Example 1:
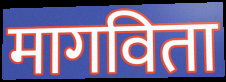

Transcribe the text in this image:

मागविता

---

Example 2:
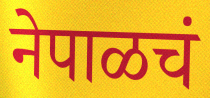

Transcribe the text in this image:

नेपाळचं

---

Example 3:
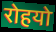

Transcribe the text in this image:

रोहयो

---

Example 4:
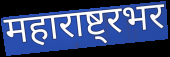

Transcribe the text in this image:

महाराष्ट्रभर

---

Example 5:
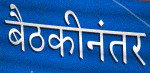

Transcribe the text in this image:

बैठकीनंतर